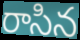
రాసిన